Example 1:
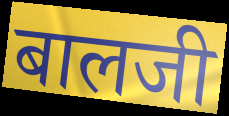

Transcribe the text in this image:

बालजी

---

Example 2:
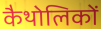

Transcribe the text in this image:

कैथोलिकों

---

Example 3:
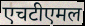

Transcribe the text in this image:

एचटीएमल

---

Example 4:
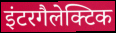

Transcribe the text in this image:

इंटरगैलेक्टिक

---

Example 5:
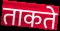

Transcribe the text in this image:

ताकते